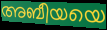
അബീയയെ